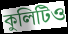
কুলিটিও